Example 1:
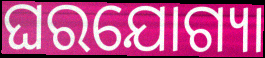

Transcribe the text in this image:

ଘରଯୋଗ୍ୟା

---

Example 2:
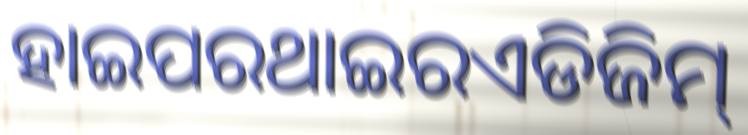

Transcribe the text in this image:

ହାଇପରଥାଇରଏଡିଜିମ୍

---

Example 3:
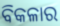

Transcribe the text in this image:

ବିକଳାର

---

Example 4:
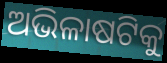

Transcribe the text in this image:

ଅଭିଳାଷଟିକୁ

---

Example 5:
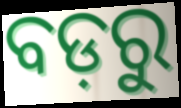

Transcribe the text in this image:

ବଡ଼ରୁ